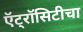
ऍट्रॉसिटीचा